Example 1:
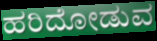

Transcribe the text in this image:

ಹರಿದೋಡುವ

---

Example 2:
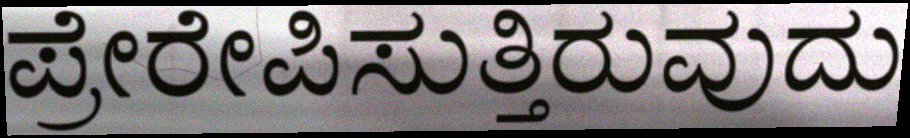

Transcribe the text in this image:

ಪ್ರೇರೇಪಿಸುತ್ತಿರುವುದು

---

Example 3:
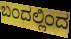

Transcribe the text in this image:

ಬಂದಲ್ಲಿಂದ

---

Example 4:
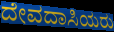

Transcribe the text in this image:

ದೇವದಾಸಿಯರು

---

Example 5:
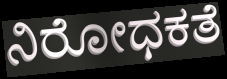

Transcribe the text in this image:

ನಿರೋಧಕತೆ